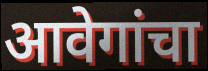
आवेगांचा